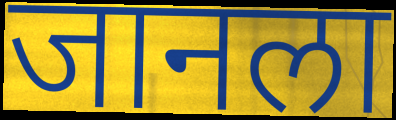
जानला